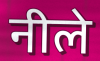
नीले